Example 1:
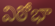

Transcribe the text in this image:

విఠోభా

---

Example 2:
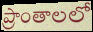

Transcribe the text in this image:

ప్రాంతాలలో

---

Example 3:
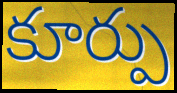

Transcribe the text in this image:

కూర్పు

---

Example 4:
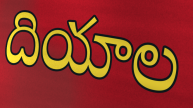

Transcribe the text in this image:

దియాల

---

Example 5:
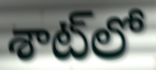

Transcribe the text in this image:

శాట్‌లో